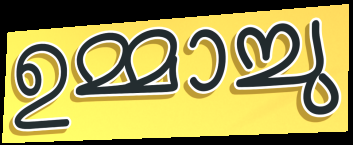
ഉമ്മാച്ചു